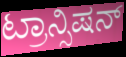
ಟ್ರಾನ್ಸಿಷನ್